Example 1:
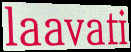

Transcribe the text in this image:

laavati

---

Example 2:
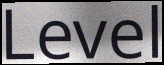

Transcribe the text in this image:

Level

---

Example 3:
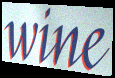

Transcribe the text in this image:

wine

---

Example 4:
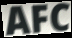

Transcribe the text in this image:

AFC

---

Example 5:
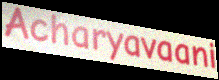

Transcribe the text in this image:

Acharyavaani